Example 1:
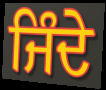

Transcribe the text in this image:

ਜਿੰਦੇ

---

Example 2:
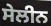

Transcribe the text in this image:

ਸੇਲੀਨ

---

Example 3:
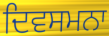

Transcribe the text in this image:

ਦਿਵਸਮਨਾ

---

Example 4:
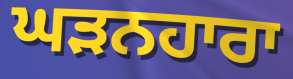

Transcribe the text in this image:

ਘੜਨਹਾਰਾ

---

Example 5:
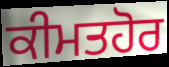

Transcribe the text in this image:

ਕੀਮਤਹੋਰ